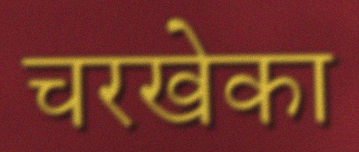
चरखेका